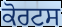
ਕੋਰਟਸ